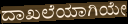
ದಾಖಲೆಯಾಗಿಯೇ